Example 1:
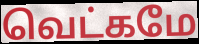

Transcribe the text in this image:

வெட்கமே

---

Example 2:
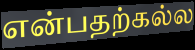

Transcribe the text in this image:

என்பதற்கல்ல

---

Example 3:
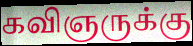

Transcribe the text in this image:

கவிஞருக்கு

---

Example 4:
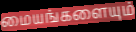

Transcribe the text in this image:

மையங்களையும்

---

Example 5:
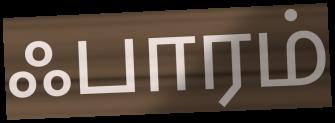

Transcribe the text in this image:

ஃபாரம்